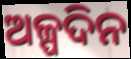
ଅଳ୍ପଦିନ